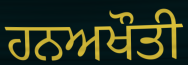
ਹਨਅਖੌਤੀ